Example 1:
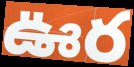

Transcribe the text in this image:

ఊర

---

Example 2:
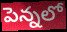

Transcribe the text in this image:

పెన్నలో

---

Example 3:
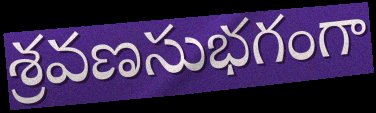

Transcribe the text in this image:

శ్రవణసుభగంగా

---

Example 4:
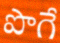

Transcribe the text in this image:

పొగే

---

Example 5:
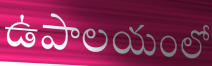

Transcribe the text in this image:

ఉపాలయంలో